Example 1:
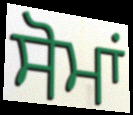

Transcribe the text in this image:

ਸੋਮਾਂ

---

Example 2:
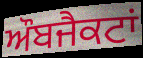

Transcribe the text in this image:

ਔਬਜੈਕਟਾਂ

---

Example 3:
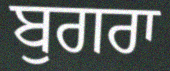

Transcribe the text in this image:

ਬੁਗਰਾ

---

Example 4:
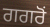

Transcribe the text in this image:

ਗਗਰੋਂ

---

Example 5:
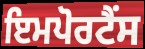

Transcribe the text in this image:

ਇਮਪੋਰਟੈਂਸ